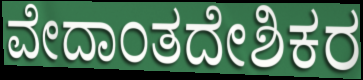
ವೇದಾಂತದೇಶಿಕರ